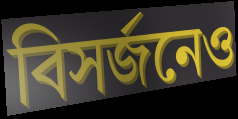
বিসর্জনেও